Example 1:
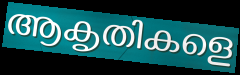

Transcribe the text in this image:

ആകൃതികളെ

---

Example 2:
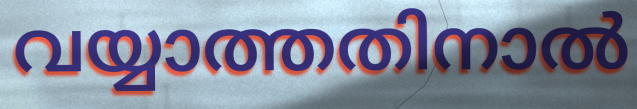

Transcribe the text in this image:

വയ്യാത്തതിനാൽ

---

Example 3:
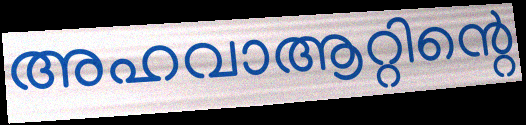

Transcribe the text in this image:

അഹവാആറ്റിന്റെ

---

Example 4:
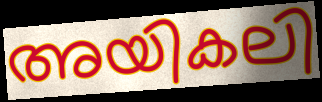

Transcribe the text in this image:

അയികലി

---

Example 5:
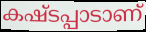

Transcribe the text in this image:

കഷ്ടപ്പാടാണ്